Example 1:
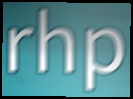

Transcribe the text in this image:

rhp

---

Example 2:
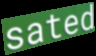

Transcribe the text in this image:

sated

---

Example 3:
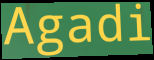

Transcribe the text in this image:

Agadi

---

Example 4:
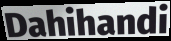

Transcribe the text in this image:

Dahihandi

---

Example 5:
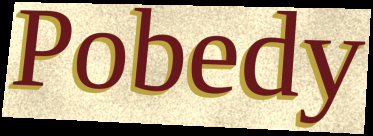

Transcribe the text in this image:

Pobedy